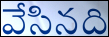
వేసినది